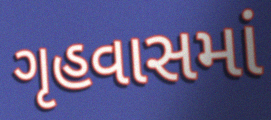
ગૃહવાસમાં